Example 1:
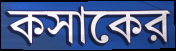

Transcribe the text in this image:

কসাকের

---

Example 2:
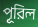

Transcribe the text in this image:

পূরিল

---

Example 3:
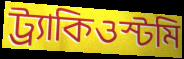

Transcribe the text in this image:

ট্র্যাকিওস্টমি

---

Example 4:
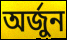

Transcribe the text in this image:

অর্জুন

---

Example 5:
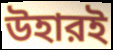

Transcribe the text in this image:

উহারই